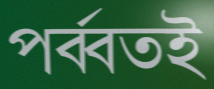
পর্ব্বতই